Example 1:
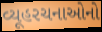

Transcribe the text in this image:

વ્યૂહરચનાઓનો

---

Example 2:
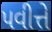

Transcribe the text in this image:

પવીત્તે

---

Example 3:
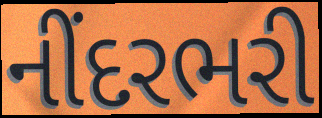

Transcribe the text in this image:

નીંદરભરી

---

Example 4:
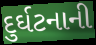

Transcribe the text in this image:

દુર્ઘટનાની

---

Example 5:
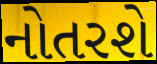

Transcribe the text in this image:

નોતરશે